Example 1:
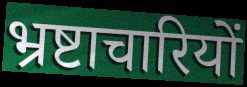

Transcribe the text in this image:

भ्रष्टाचारियों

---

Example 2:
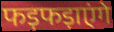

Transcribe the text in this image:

फड़फड़ाएंगे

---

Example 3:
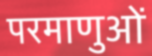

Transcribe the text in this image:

परमाणुओं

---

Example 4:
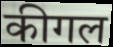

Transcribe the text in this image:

कीगल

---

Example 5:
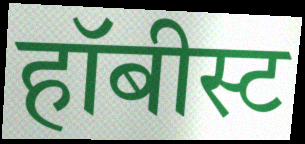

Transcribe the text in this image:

हॉबीस्ट